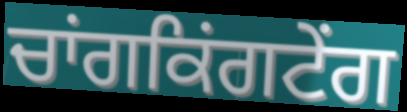
ਚਾਂਗਕਿਂਗਟੇਂਗ